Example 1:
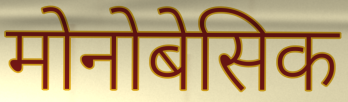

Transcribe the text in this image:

मोनोबेसिक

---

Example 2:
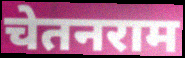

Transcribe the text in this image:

चेतनराम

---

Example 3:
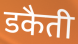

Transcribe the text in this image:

डकैती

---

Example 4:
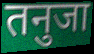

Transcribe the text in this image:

तनुजा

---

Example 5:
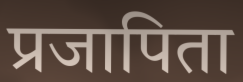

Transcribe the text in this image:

प्रजापिता